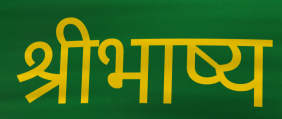
श्रीभाष्य